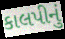
કાલપીનું